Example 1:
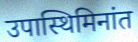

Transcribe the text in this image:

उपास्थिमिनांत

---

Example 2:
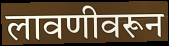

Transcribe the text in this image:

लावणीवरून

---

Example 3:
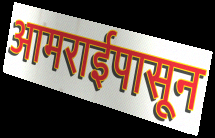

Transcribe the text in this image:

आमराईपासून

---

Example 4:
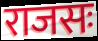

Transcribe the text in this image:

राजसः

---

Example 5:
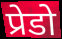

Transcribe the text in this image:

प्रेडो